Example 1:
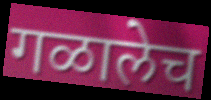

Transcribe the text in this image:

गळालेच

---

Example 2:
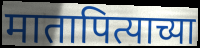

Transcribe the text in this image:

मातापित्याच्या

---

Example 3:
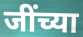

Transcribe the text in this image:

जींच्या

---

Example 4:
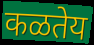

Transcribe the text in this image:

कळतेय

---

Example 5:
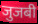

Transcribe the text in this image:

जुजबी